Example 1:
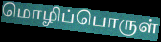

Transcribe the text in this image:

மொழிப்பொருள்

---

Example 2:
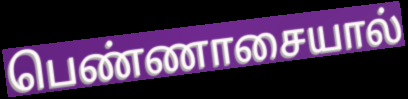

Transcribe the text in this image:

பெண்ணாசையால்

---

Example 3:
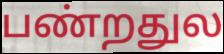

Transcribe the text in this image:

பண்றதுல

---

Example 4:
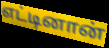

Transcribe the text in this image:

எட்டினான்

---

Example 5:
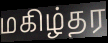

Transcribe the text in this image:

மகிழ்தர